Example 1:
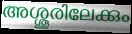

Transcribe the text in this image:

അശ്ശൂരിലേക്കും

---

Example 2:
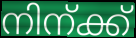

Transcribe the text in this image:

നിന്ക്ക്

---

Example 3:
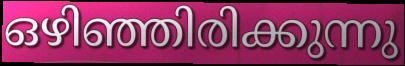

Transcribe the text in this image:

ഒഴിഞ്ഞിരിക്കുന്നു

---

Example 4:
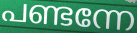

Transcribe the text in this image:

പണ്ടന്നേ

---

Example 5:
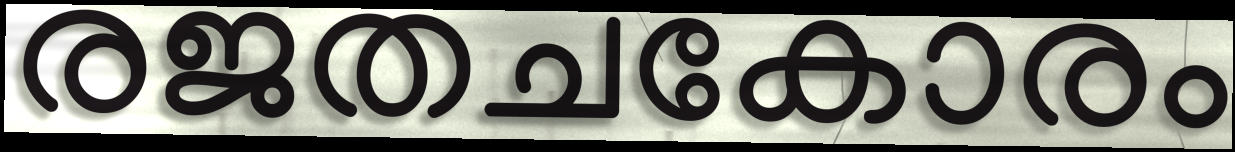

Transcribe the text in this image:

രജതചകോരം